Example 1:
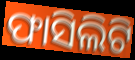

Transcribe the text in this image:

ଫାସିଲିଟି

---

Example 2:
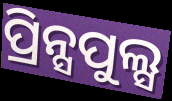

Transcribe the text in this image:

ପ୍ରିନ୍ସପୁଲ୍ସ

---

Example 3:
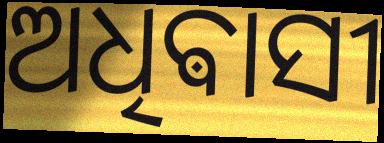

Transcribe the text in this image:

ଅଧିଵାସୀ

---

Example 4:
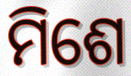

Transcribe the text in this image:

ମିଶେ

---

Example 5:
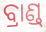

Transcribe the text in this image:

ବ୍ରାଣ୍ଡ୍